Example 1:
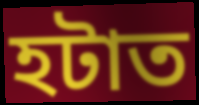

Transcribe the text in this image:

হটাত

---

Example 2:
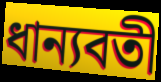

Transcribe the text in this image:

ধান্যবতী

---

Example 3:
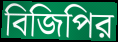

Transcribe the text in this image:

বিজিপির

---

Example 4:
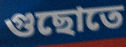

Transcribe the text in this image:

গুছোতে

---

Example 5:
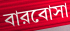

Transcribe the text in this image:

বারবোসা